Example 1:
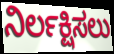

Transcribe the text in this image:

ನಿರ್ಲಕ್ಷಿಸಲು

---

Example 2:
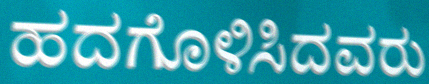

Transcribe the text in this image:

ಹದಗೊಳಿಸಿದವರು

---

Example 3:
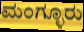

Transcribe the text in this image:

ಮಂಗ್ಳೂರು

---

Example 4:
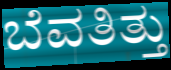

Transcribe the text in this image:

ಬೆವತಿತ್ತು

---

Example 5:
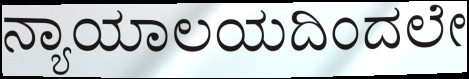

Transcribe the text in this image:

ನ್ಯಾಯಾಲಯದಿಂದಲೇ